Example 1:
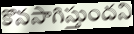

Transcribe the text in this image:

కొనసాగిస్తుందని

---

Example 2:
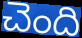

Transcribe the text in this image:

చెంది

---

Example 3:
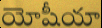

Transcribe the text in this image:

యోషీయా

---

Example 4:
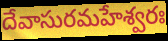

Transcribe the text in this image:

దేవాసురమహేశ్వరః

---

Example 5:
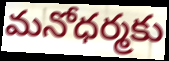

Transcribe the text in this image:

మనోధర్మకు